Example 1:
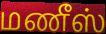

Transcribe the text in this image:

மணீஸ்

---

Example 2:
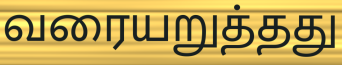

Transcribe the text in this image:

வரையறுத்தது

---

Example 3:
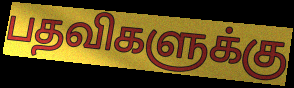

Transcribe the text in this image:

பதவிகளுக்கு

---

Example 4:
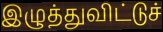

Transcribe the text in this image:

இழுத்துவிட்டுச்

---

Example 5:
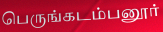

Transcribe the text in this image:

பெருங்கடம்பனூர்